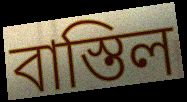
বাস্তিল